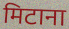
मिटाना